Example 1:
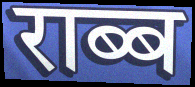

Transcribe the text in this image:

राब्ब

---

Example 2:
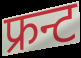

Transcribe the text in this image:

फ्रन्ट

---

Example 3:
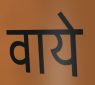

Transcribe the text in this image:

वाये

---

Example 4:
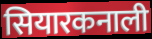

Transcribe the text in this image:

सियारकनाली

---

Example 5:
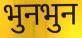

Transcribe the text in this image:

भुनभुन